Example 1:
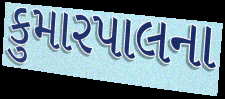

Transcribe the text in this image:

કુમારપાલના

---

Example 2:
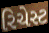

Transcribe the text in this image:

રિચેસ્ટ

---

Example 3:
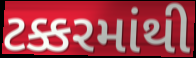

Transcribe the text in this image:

ટક્કરમાંથી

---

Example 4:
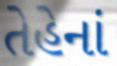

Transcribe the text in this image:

તેહેનાં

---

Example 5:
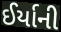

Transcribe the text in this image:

ઈર્યાની